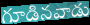
గూడినవాడు